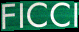
FICCI